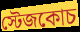
স্টেজকোচ